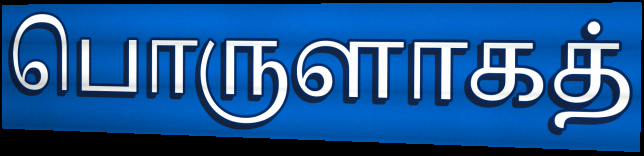
பொருளாகத்